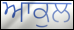
ਆਕੁਲ